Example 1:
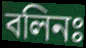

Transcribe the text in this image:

বলিনঃ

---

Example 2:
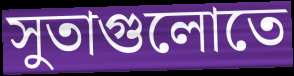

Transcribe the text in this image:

সুতাগুলোতে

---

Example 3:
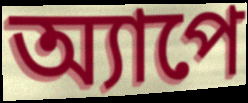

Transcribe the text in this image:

অ্যাপে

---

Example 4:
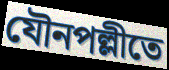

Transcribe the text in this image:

যৌনপল্লীতে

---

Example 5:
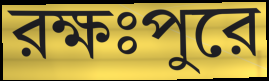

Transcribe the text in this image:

রক্ষঃপুরে